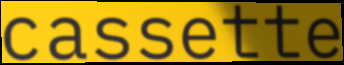
cassette